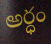
అర్ధం